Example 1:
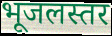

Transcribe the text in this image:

भूजलस्तर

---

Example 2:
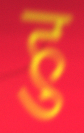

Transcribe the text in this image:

हु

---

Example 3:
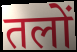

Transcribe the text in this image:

तलों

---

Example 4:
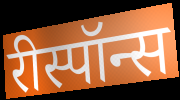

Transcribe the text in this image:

रीस्पॉन्स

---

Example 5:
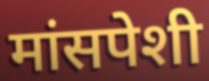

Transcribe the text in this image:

मांसपेशी